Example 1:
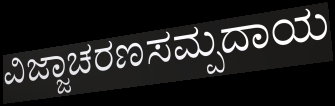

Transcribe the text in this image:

ವಿಜ್ಜಾಚರಣಸಮ್ಪದಾಯ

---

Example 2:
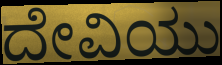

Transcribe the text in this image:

ದೇವಿಯು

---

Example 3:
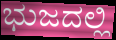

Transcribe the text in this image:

ಭುಜದಲ್ಲಿ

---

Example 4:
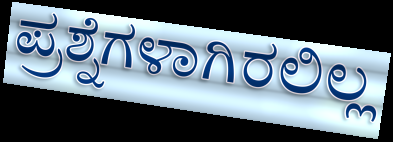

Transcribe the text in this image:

ಪ್ರಶ್ನೆಗಳಾಗಿರಲಿಲ್ಲ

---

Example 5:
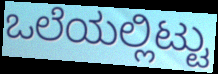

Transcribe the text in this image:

ಒಲೆಯಲ್ಲಿಟ್ಟು